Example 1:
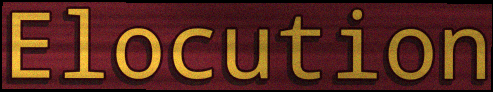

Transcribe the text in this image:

Elocution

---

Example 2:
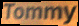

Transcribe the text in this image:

Tommy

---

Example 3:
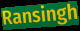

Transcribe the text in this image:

Ransingh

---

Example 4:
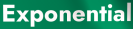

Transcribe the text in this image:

Exponential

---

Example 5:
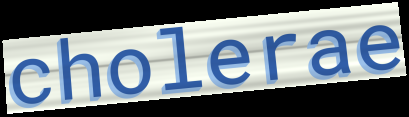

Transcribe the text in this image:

cholerae